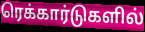
ரெக்கார்டுகளில்